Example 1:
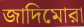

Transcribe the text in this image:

জাদিমোরা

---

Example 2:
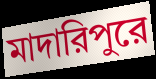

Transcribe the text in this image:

মাদারিপুরে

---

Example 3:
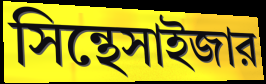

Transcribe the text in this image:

সিন্থেসাইজার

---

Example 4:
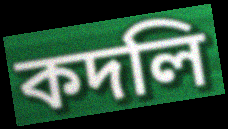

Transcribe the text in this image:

কদলি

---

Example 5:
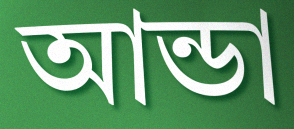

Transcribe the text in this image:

আন্ডা